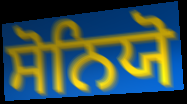
ਸੋਨਿਯੋ